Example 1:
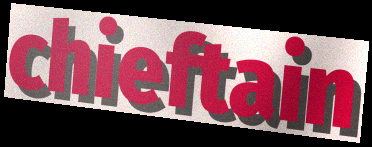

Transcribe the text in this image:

chieftain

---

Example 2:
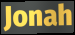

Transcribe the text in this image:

Jonah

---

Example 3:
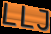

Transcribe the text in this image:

LLJ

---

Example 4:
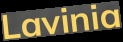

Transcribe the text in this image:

Lavinia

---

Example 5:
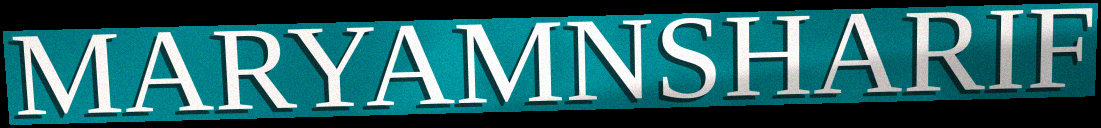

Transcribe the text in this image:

MARYAMNSHARIF